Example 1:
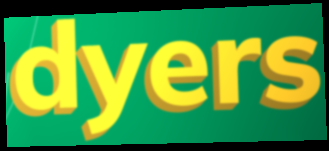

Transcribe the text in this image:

dyers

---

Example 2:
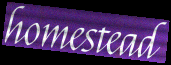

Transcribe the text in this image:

homestead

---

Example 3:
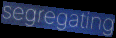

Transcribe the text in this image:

segregating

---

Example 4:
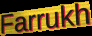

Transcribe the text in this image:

Farrukh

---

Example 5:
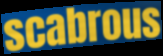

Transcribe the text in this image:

scabrous